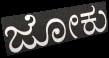
ಜೋಕು